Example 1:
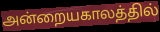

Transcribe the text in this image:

அன்றையகாலத்தில்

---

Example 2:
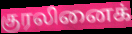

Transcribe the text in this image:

குரலினைக்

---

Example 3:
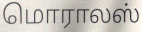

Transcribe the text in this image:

மொராலஸ்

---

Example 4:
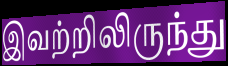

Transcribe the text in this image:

இவற்றிலிருந்து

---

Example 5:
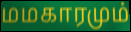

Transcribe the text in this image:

மமகாரமும்